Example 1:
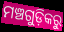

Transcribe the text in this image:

ମଞ୍ଚଗୁଡ଼ିକରୁ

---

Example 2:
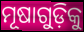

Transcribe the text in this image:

ମୂଷାଗୁଡ଼ିକୁ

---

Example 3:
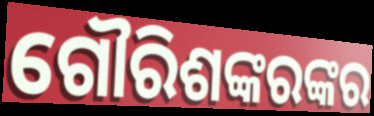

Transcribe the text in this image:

ଗୌରିଶଙ୍କରଙ୍କର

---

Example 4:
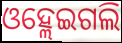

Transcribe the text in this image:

ଓହ୍ଲେଇଗଲି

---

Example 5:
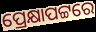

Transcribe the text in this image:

ପ୍ରେକ୍ଷାପଟ୍ଟରେ